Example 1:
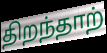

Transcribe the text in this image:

திறந்தாற்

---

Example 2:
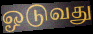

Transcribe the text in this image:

ஓடுவது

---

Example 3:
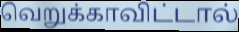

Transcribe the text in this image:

வெறுக்காவிட்டால்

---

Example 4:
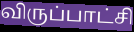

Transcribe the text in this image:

விருப்பாட்சி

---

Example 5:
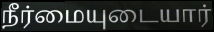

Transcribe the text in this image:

நீர்மையுடையார்